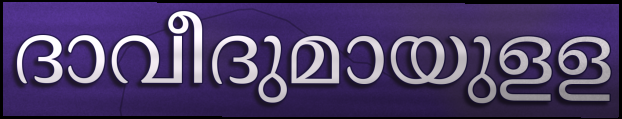
ദാവീദുമായുളള